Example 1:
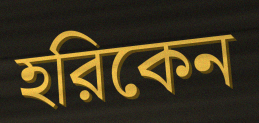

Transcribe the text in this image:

হরিকেন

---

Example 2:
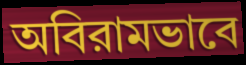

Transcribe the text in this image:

অবিরামভাবে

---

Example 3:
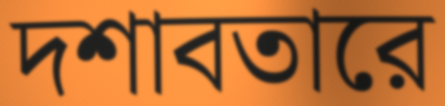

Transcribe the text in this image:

দশাবতারে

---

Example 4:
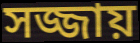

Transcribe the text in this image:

সজ্জায়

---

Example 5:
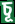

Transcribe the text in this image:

চূ